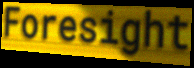
Foresight